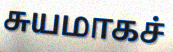
சுயமாகச்